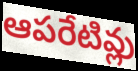
ఆపరేటివ్లు